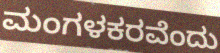
ಮಂಗಳಕರವೆಂದು